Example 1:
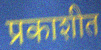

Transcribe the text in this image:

प्रकाशीत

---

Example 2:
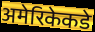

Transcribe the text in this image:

अमेरिकेकडे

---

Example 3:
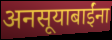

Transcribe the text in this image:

अनसूयाबाईंना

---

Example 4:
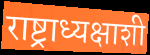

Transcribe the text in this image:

राष्ट्राध्यक्षाशी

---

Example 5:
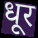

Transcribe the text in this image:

धूर